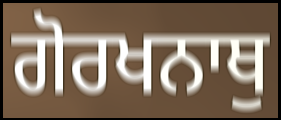
ਗੋਰਖਨਾਥੁ